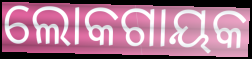
ଲୋକଗାୟକ